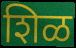
शिळ